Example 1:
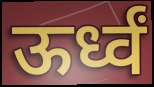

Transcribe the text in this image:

ऊर्ध्वं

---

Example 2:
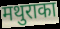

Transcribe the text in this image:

मथुराका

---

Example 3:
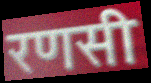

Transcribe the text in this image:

रणसी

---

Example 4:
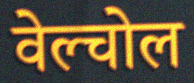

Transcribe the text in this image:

वेल्चोल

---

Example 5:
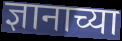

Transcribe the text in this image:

ज्ञानाच्या